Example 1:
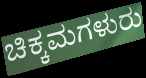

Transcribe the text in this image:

ಚಿಕ್ಕಮಗಳುರು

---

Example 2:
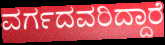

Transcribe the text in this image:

ವರ್ಗದವರಿದ್ದಾರೆ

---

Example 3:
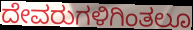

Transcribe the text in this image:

ದೇವರುಗಳಿಗಿಂತಲೂ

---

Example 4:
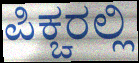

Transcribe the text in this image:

ಪಿಕ್ಚರಲ್ಲಿ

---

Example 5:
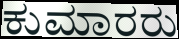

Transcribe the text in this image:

ಕುಮಾರರು